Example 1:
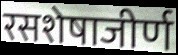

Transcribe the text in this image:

रसशेषाजीर्ण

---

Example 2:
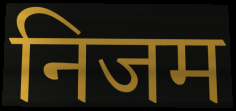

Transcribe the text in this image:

निजम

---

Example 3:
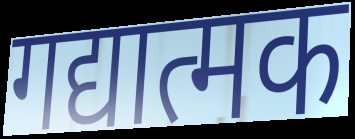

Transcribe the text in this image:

गद्यात्मक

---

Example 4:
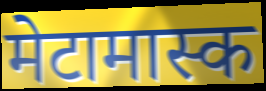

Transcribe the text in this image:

मेटामास्क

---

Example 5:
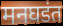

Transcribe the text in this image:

मनघडंत